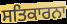
ਸਤਿਕਾਰਨਾ